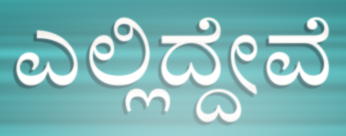
ಎಲ್ಲಿದ್ದೇವೆ